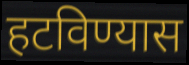
हटविण्यास